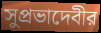
সুপ্রভাদেবীর